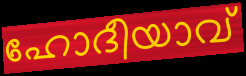
ഹോദീയാവ്